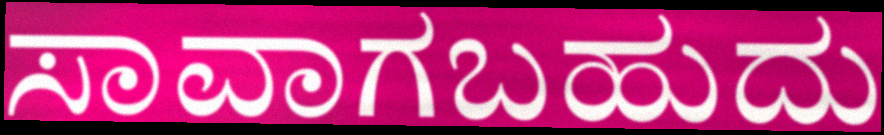
ಸಾವಾಗಬಹುದು